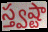
స్త్వష్టా